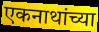
एकनाथांच्या